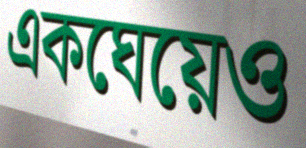
একঘেয়েও